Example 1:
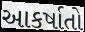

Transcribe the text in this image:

આકર્ષાતો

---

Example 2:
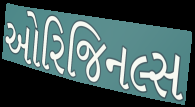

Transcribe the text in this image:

ઓરિજિનલ્સ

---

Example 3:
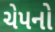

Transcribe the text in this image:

ચેપનો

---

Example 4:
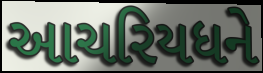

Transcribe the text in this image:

આચરિયધને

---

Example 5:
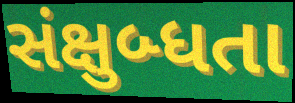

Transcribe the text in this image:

સંક્ષુબ્ધતા